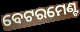
ବେଟରମେଣ୍ଟ